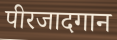
पीरजादगान